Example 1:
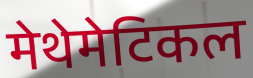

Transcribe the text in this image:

मेथेमेटिकल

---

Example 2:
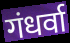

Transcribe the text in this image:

गंधर्वा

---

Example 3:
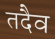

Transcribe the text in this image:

तदैव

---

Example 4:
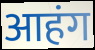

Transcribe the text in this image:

आहंग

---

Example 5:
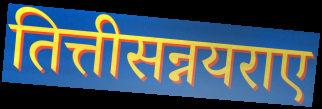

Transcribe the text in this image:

तित्तीसन्नयराए